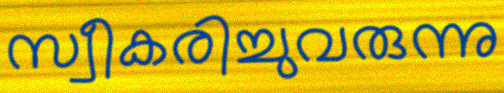
സ്വീകരിച്ചുവരുന്നു